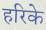
हरिके